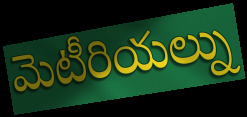
మెటీరియల్ను